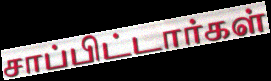
சாப்பிட்டார்கள்